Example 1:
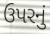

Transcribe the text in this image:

ઉપરનું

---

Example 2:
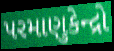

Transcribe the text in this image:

પરમાણુકેન્દ્રો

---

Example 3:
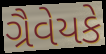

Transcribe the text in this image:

ગ્રૈવેયકે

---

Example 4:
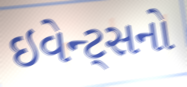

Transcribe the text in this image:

ઇવેન્ટ્સનો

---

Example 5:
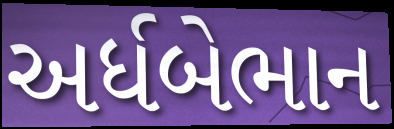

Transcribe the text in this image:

અર્ધબેભાન